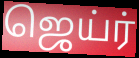
ஜெய்ர்